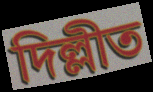
দিল্লীত